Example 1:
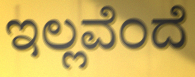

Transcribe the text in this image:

ಇಲ್ಲವೆಂದೆ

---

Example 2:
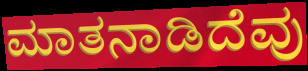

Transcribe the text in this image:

ಮಾತನಾಡಿದೆವು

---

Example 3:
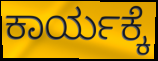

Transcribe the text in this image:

ಕಾರ್ಯಕ್ಕೆ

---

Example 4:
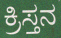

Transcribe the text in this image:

ಕ್ರಿಸ್ತನ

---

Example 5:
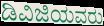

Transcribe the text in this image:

ಡಿವಿಜಿಯವರು